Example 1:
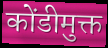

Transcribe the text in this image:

कोंडीमुक्त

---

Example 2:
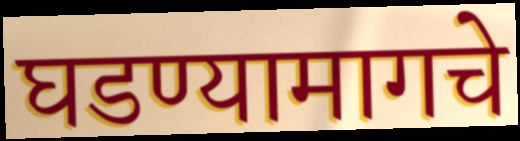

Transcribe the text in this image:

घडण्यामागचे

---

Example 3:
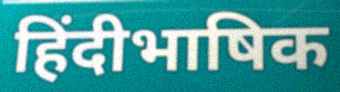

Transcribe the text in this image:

हिंदीभाषिक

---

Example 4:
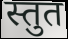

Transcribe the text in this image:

स्तुत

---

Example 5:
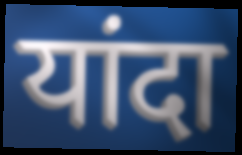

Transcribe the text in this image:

यांदा